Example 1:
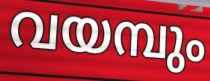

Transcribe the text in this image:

വയമ്പും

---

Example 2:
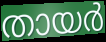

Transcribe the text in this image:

തായർ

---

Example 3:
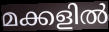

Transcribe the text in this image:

മക്കളിൽ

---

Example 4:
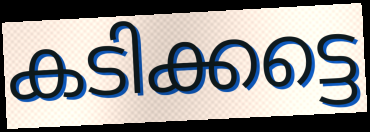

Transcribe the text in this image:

കടിക്കട്ടെ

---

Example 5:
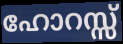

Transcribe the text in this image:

ഹോറസ്സ്